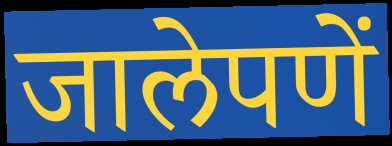
जालेपणें